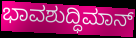
ಭಾವಶುದ್ಧಿಮಾನ್